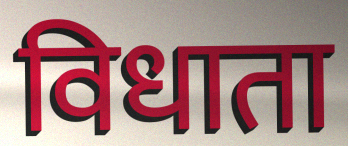
विधाता